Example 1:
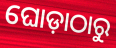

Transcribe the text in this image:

ଘୋଡ଼ାଠାରୁ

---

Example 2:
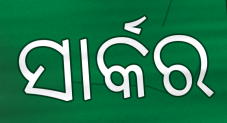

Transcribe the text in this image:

ସାର୍କର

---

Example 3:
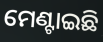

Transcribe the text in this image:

ମେଣ୍ଟାଇଛି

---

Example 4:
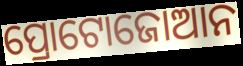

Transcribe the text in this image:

ପ୍ରୋଟୋଜୋଆନ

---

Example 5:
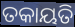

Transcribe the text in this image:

ତକାୟତି